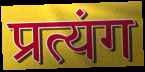
प्रत्यंग